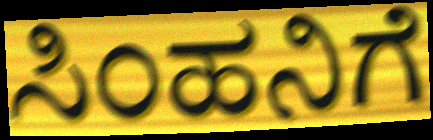
ಸಿಂಹನಿಗೆ